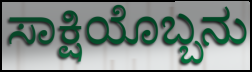
ಸಾಕ್ಷಿಯೊಬ್ಬನು